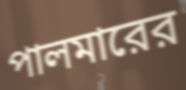
পালমারের